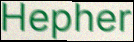
Hepher